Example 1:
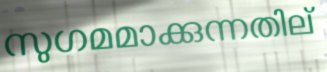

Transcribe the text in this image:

സുഗമമാക്കുന്നതില്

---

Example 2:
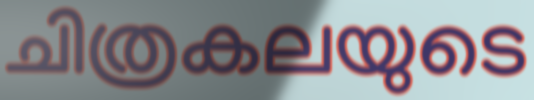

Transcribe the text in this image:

ചിത്രകലയുടെ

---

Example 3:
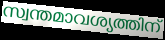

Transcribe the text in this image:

സ്വന്തമാവശ്യത്തിന്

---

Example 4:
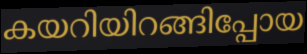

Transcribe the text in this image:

കയറിയിറങ്ങിപ്പോയ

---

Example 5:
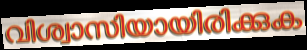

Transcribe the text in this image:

വിശ്വാസിയായിരിക്കുക